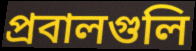
প্রবালগুলি